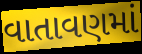
વાતાવણમાં